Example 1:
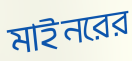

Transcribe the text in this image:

মাইনরের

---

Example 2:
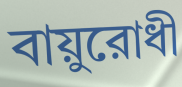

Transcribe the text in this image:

বায়ুরোধী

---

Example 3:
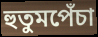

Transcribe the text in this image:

হুতুমপেঁচা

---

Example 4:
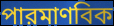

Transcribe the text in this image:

পারমাণবিক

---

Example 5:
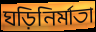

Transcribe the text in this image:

ঘড়িনির্মাতা